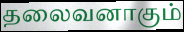
தலைவனாகும்